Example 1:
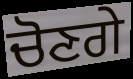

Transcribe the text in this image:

ਚੋਣਗੇ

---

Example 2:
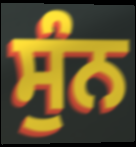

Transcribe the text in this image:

ਸੁੰਨ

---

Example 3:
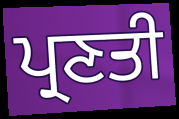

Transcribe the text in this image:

ਪ੍ਰਣਤੀ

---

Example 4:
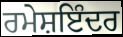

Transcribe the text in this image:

ਰਮੇਸ਼ਇੰਦਰ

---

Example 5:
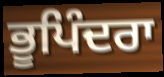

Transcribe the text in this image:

ਭੂਪਿੰਦਰਾ